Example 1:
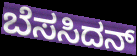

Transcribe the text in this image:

ಬೆಸಸಿದನ್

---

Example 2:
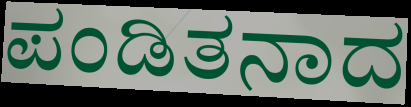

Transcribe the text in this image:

ಪಂಡಿತನಾದ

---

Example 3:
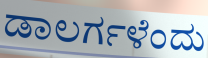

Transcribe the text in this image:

ಡಾಲರ್ಗಳೆಂದು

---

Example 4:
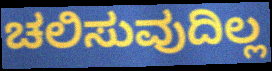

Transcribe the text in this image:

ಚಲಿಸುವುದಿಲ್ಲ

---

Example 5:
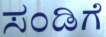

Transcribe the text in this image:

ಸಂಡಿಗೆ